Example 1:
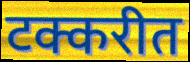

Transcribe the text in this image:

टक्करीत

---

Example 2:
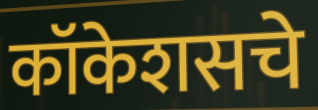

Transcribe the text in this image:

कॉकेशसचे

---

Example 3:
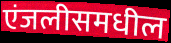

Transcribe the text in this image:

एंजलीसमधील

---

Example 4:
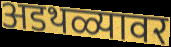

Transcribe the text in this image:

अडथळ्यावर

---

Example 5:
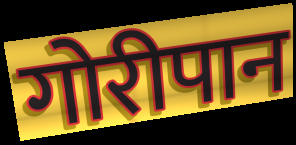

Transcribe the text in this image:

गोरीपान